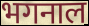
भगनाल